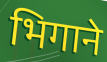
भिगाने